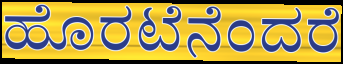
ಹೊರಟೆನೆಂದರೆ